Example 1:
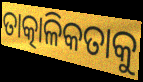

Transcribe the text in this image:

ତାତ୍କାଳିକତାକୁ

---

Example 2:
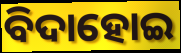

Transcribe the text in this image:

ବିଦାହୋଇ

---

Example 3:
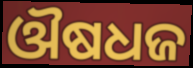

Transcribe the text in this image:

ଔଷଧଜ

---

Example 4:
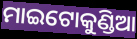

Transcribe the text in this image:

ମାଇଟୋକୁଣ୍ଡିଆ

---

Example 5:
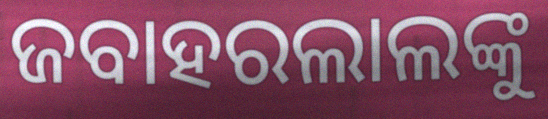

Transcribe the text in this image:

ଜବାହରଲାଲଙ୍କୁ